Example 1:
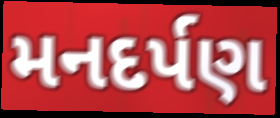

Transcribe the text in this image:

મનદર્પણ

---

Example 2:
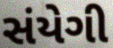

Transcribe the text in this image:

સંયેગી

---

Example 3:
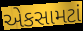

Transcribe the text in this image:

એકસામટાં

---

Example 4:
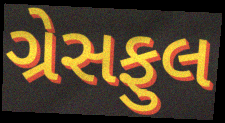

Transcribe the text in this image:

ગ્રેસફુલ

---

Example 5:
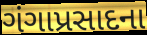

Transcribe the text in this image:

ગંગાપ્રસાદના